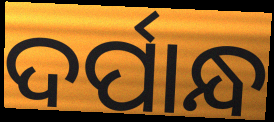
ଦର୍ପାନ୍ଧ